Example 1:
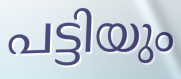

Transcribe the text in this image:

പട്ടിയും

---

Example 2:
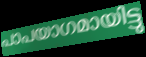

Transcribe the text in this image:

പാപയാഗമായിട്ടു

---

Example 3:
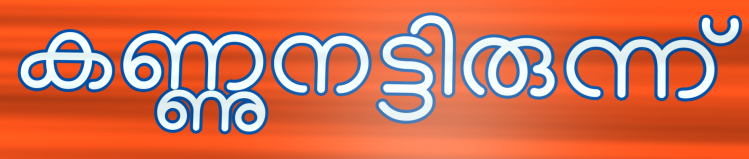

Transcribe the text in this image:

കണ്ണുനട്ടിരുന്ന്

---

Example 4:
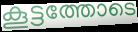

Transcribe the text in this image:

കൂട്ടത്തോടെ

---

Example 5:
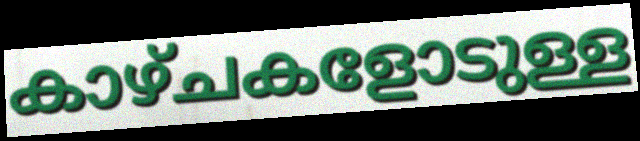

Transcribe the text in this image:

കാഴ്ചകളോടുള്ള